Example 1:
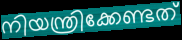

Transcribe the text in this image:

നിയന്ത്രിക്കേണ്ടത്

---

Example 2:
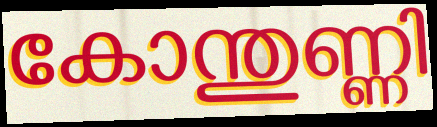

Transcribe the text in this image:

കോന്തുണ്ണി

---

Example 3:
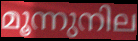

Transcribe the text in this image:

മൂന്നുനില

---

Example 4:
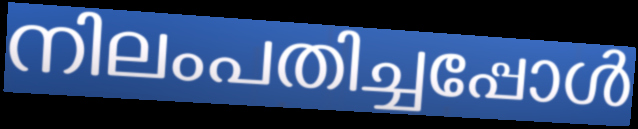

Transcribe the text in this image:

നിലംപതിച്ചപ്പോൾ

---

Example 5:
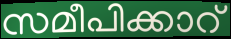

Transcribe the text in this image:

സമീപിക്കാറ്